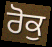
ਰੋਕੁ